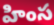
హింస